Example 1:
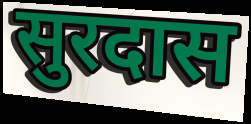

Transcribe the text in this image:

सुरदास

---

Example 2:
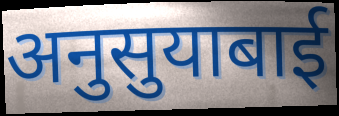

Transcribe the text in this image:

अनुसुयाबाई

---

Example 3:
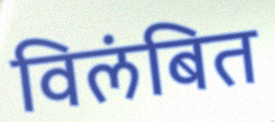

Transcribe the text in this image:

विलंबित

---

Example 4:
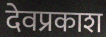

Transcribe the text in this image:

देवप्रकाश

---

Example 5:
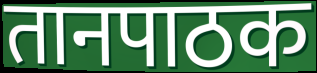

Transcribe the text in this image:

तानपाठक